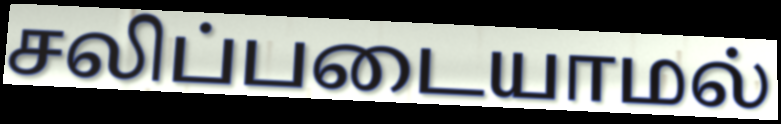
சலிப்படையாமல்